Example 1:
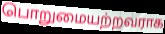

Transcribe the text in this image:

பொறுமையற்றவராக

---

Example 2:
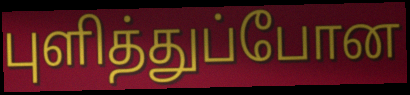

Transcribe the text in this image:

புளித்துப்போன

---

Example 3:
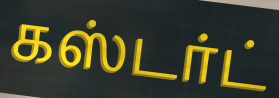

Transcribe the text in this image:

கஸ்டர்ட்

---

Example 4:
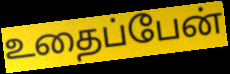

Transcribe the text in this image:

உதைப்பேன்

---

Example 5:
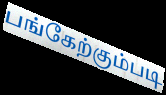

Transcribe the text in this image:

பங்கேற்கும்படி